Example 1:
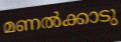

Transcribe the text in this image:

മണൽക്കാടു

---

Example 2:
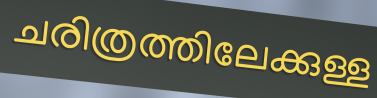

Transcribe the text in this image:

ചരിത്രത്തിലേക്കുള്ള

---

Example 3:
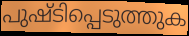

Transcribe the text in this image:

പുഷ്ടിപ്പെടുത്തുക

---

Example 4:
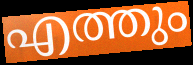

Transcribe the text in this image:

എത്തും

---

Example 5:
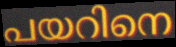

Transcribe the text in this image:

പയറിനെ